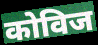
कोविज